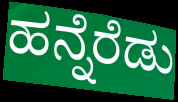
ಹನ್ನೆರೆಡು